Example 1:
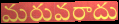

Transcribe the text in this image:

మరువరాదు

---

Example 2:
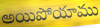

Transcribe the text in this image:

అయిపోయాము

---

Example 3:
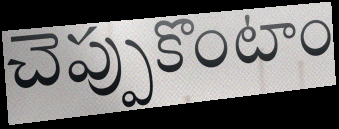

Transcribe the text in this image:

చెప్పుకొంటాం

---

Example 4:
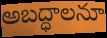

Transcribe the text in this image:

అబద్ధాలనూ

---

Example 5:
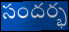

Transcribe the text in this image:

సందర్భ